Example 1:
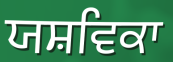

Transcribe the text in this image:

ਯਸ਼ਵਿਕਾ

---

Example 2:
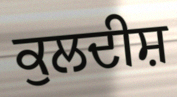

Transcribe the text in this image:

ਕੁਲਦੀਸ਼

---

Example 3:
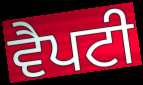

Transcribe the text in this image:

ਵੈਪਟੀ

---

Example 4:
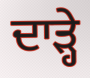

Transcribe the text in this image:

ਦਾੜ੍ਹੇ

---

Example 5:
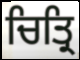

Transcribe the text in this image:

ਚਿਤ੍ਰਿ